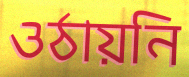
ওঠায়নি